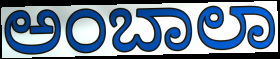
ಅಂಬಾಲಾ